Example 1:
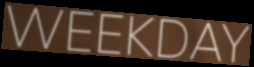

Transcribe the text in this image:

WEEKDAY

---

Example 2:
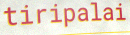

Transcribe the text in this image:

tiripalai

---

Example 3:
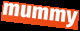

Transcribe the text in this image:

mummy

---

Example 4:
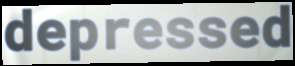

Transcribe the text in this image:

depressed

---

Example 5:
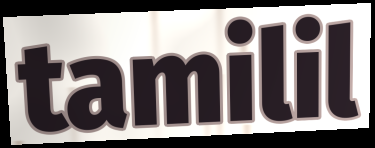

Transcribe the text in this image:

tamilil